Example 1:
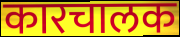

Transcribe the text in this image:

कारचालक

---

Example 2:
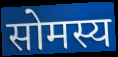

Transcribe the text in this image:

सोमस्य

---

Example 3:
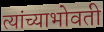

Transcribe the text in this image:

त्यांच्याभोवती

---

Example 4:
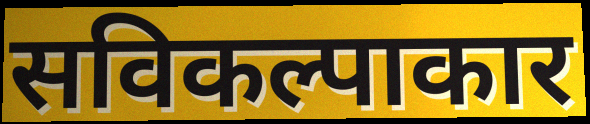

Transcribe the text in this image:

सविकल्पाकार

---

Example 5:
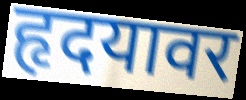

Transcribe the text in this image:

हृदयावर